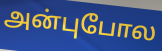
அன்புபோல